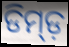
ଡିମ୍ଡ଼